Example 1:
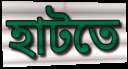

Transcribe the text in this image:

হাটতে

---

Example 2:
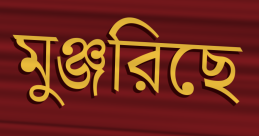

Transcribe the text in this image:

মুঞ্জরিছে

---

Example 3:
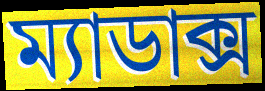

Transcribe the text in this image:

ম্যাডাক্স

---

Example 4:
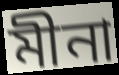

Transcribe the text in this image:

মীনা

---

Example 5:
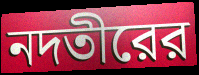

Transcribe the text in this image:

নদতীরের